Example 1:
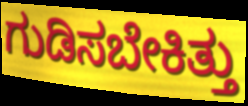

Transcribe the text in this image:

ಗುಡಿಸಬೇಕಿತ್ತು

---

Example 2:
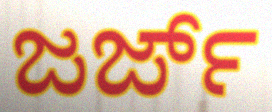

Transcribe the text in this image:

ಜರ್ಜ್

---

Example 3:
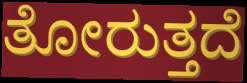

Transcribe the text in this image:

ತೋರುತ್ತದೆ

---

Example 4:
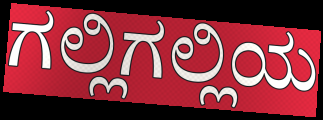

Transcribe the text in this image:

ಗಲ್ಲಿಗಲ್ಲಿಯ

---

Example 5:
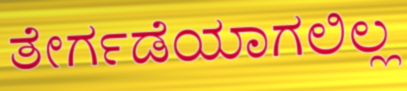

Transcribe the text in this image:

ತೇರ್ಗಡೆಯಾಗಲಿಲ್ಲ